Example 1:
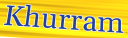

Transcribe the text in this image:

Khurram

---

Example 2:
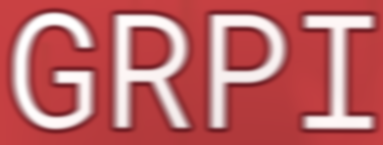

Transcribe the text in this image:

GRPI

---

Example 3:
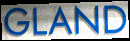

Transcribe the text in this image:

GLAND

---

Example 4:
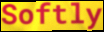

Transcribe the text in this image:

Softly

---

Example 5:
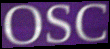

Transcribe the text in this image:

OSC